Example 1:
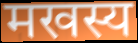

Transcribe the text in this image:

मखस्य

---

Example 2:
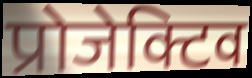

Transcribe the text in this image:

प्रोजेक्टिव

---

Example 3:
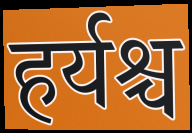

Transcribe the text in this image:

हर्यश्च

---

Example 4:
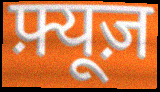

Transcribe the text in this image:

फ़्यूज़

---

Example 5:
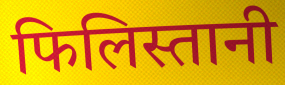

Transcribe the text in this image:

फिलिस्तानी